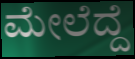
ಮೇಲೆದ್ದೆ